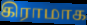
கிராமாக